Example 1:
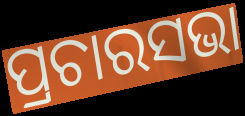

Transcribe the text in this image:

ପ୍ରଚାରସଭା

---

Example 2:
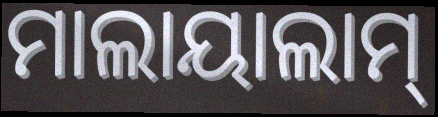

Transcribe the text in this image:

ମାଲାୟାଲାମ୍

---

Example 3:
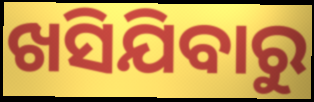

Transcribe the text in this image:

ଖସିଯିବାରୁ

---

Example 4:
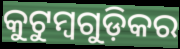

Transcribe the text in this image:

କୁଟୁମ୍ବଗୁଡ଼ିକର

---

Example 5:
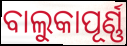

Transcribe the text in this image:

ବାଲୁକାପୂର୍ଣ୍ଣ